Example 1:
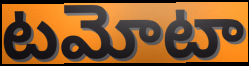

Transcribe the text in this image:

టమోటా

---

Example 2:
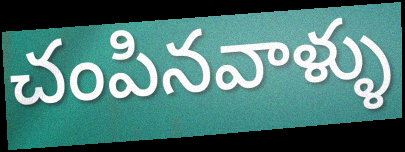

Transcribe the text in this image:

చంపినవాళ్ళు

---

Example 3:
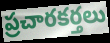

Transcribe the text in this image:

ప్రచారకర్తలు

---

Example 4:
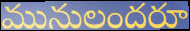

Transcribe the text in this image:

మునులందరూ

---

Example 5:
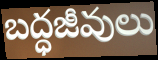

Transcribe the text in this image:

బద్ధజీవులు